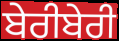
ਬੇਰੀਬੇਰੀ